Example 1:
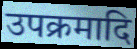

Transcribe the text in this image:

उपक्रमादि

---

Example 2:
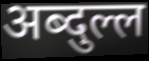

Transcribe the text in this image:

अब्दुल्ल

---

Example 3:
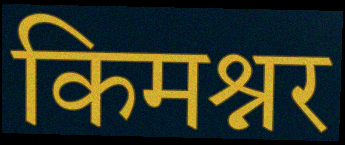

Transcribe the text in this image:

किमश्नर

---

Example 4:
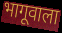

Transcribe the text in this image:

भागूवाला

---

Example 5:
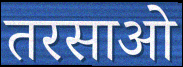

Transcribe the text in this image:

तरसाओ